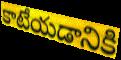
కాటేయడానికి